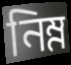
নিম্ন